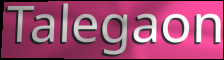
Talegaon